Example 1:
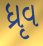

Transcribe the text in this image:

ધ્રૃવ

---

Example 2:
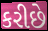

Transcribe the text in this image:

કરીછે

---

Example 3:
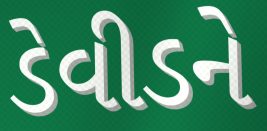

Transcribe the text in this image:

ડેવીડને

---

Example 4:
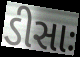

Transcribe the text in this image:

ડીસાઃ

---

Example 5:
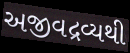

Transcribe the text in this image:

અજીવદ્રવ્યથી